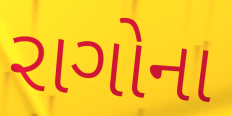
રાગોના